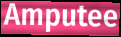
Amputee